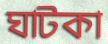
ঘাটকা